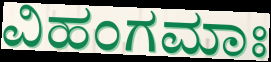
ವಿಹಂಗಮಾಃ